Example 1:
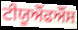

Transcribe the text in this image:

ਟੀਯੂਐੱਫਐੱਸ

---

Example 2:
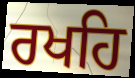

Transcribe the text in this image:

ਰਖਹਿ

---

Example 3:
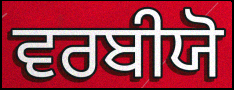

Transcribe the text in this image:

ਵਰਬੀਯੋ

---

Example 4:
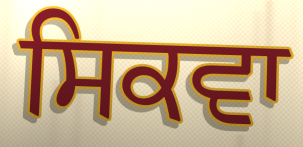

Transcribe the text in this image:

ਸਿਕਵਾ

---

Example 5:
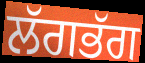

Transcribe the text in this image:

ਲੱਗਭੱਗ